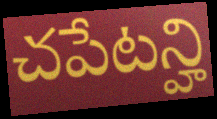
చపేటన్హి